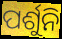
ପର୍ଶୁନି